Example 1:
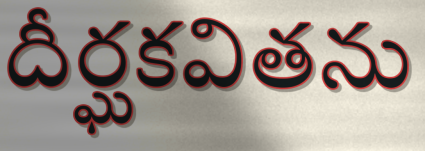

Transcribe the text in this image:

దీర్ఘకవితను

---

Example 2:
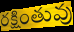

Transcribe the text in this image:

రక్షింతువు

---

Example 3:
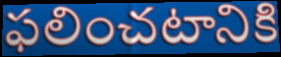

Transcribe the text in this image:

ఫలించటానికి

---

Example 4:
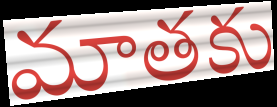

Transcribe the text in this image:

మాతకు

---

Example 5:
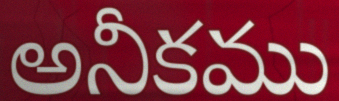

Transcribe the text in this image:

అనీకము